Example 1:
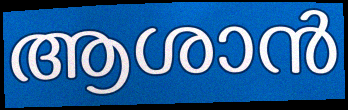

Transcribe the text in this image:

ആശാൻ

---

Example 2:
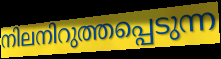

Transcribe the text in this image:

നിലനിറുത്തപ്പെടുന്ന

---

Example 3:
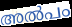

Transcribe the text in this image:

അൽപം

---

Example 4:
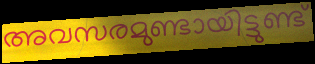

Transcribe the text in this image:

അവസരമുണ്ടായിട്ടുണ്ട്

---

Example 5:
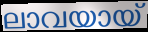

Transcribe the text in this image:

ലാവയായ്